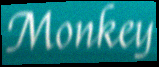
Monkey